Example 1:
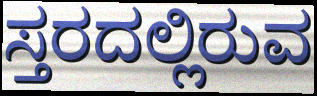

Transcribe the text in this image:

ಸ್ತರದಲ್ಲಿರುವ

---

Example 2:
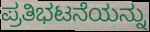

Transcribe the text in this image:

ಪ್ರತಿಭಟನೆಯನ್ನು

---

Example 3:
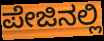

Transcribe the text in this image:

ಪೇಜಿನಲ್ಲಿ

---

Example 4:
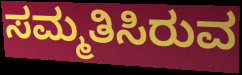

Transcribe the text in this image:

ಸಮ್ಮತಿಸಿರುವ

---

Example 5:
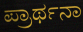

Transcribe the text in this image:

ಪ್ರಾರ್ಥನಾ